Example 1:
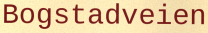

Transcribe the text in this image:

Bogstadveien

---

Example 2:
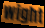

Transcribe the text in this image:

wight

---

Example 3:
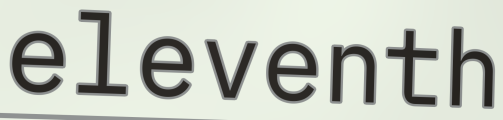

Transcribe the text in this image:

eleventh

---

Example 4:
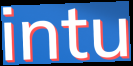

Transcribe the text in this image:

intu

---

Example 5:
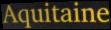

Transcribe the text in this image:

Aquitaine